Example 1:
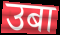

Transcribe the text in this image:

उबा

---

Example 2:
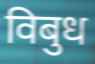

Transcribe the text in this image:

विबुध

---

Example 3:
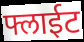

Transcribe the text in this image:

फ्लाईट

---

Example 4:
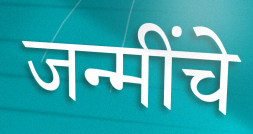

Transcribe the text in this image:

जन्मींचे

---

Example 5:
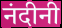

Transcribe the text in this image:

नंदीनी